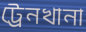
ট্রেনখানা